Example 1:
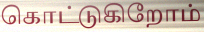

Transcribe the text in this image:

கொட்டுகிறோம்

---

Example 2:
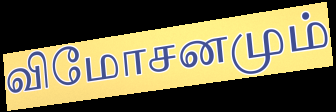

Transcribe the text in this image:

விமோசனமும்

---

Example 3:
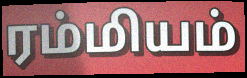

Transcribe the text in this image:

ரம்மியம்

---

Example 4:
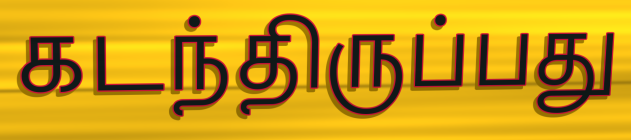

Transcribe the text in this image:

கடந்திருப்பது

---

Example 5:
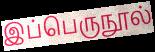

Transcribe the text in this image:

இப்பெருநூல்